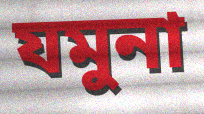
যমুনা